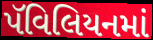
પૅવિલિયનમાં